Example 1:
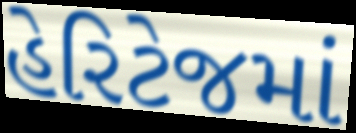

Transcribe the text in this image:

હેરિટેજમાં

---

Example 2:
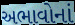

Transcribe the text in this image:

અભાવોનાં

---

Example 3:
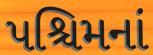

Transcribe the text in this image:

પશ્ચિમનાં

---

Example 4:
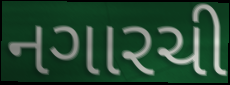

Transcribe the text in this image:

નગારચી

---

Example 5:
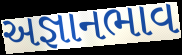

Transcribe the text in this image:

અજ્ઞાનભાવ